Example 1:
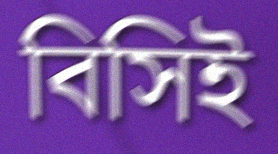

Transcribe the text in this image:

বিসিই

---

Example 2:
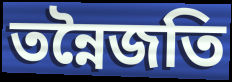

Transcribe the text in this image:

তন্নৈজতি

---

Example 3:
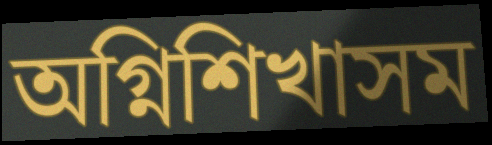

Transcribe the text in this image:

অগ্নিশিখাসম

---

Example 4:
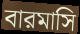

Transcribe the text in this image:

বারমাসি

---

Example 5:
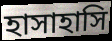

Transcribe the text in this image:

হাসাহাসি